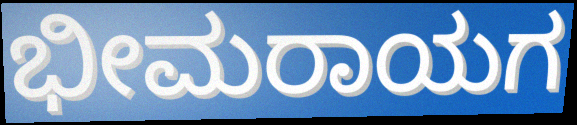
ಭೀಮರಾಯಗ